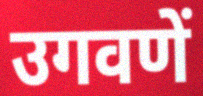
उगवणें